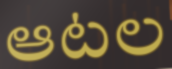
ఆటల